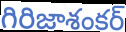
గిరిజాశంకర్